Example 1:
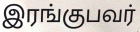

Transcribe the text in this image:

இரங்குபவர்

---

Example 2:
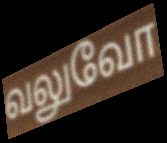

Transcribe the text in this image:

வலுவோ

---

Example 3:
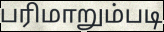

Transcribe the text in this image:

பரிமாறும்படி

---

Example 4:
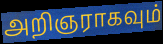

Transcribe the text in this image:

அறிஞராகவும்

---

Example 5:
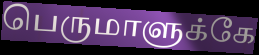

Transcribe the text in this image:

பெருமாளுக்கே